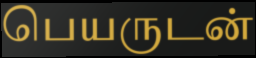
பெயருடன்